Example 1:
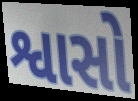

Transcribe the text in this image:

શ્વાસો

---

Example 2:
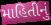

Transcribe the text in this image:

માહિતીનું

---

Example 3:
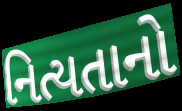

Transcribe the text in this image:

નિત્યતાનો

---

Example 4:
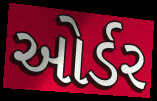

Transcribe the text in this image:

ઓર્ડર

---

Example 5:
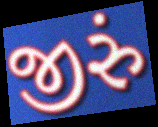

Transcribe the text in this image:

જીરું